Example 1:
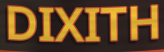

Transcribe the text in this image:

DIXITH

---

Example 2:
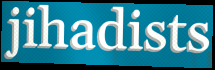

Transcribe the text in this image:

jihadists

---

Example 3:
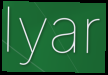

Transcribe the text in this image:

Iyar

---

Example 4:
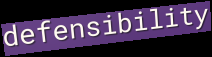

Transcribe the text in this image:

defensibility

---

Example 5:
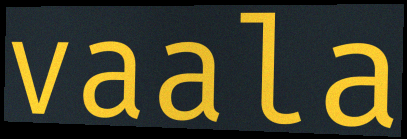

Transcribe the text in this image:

vaala